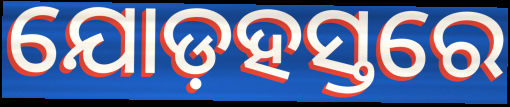
ଯୋଡ଼ହସ୍ତରେ